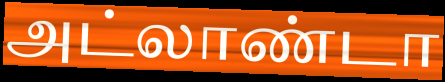
அட்லாண்டா